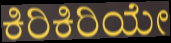
ಕಿರಿಕಿರಿಯೇ